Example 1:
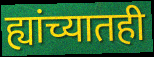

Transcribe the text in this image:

ह्यांच्यातही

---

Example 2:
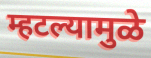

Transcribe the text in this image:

म्हटल्यामुळे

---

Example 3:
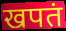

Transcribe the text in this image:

खपतं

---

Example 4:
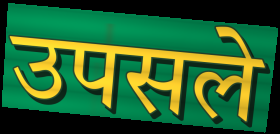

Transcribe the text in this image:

उपसले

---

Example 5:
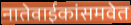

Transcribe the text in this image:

नातेवाईकांसमवेत